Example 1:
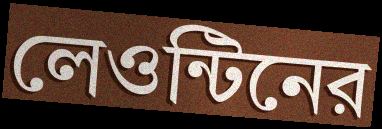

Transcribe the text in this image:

লেওন্টিনের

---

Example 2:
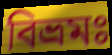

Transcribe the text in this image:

বিভ্রমঃ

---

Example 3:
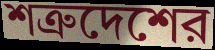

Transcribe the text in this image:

শত্রুদেশের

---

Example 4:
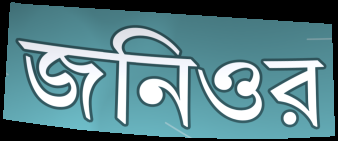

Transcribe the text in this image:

জনিওর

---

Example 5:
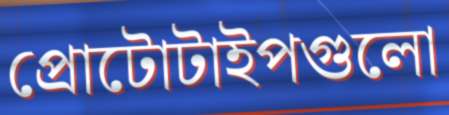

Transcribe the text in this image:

প্রোটোটাইপগুলো